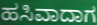
ಹಸಿವಾದಾಗ